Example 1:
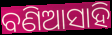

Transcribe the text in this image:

ବଣିଆସାହି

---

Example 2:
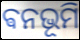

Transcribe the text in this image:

ଵନଭୂମି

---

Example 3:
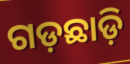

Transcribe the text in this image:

ଗଡ଼ଛାଡ଼ି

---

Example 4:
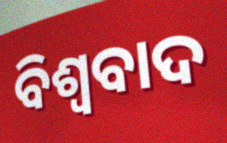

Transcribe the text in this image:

ବିଶ୍ୱବାଦ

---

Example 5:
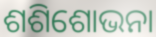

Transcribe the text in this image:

ଶଶିଶୋଭନା